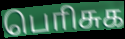
பெரிசுக